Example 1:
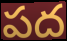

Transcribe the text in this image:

పద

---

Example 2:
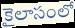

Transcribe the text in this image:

కైలాసంలో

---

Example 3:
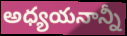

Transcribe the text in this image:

అధ్యయనాన్నీ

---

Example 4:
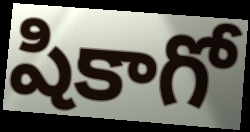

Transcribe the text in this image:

షికాగో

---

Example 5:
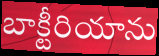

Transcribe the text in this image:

బాక్టీరియాను